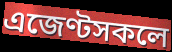
এজেণ্টসকলে